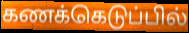
கணக்கெடுப்பில்